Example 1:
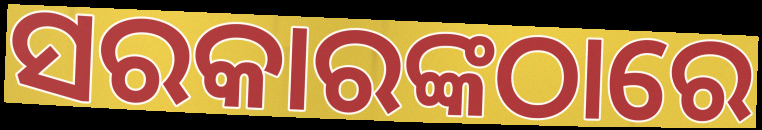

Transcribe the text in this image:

ସରକାରଙ୍କଠାରେ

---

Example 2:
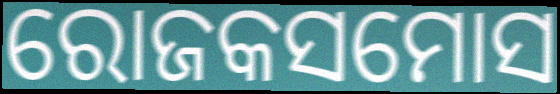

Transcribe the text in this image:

ରୋଜକସମୋସ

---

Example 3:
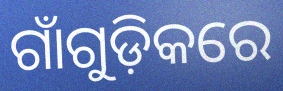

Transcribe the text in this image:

ଗାଁଗୁଡ଼ିକରେ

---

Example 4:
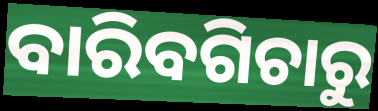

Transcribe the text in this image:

ବାରିବଗିଚାରୁ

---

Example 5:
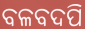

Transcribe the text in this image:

ବଳବଦପି